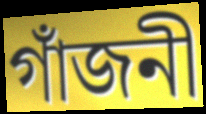
গাঁজনী